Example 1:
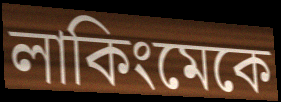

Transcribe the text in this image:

লাকিংমেকে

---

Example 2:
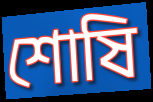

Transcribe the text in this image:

শোষি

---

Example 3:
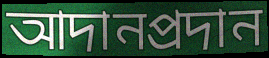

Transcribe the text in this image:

আদানপ্রদান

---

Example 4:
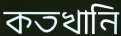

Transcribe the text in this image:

কতখানি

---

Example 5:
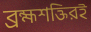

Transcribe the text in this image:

ব্রহ্মশক্তিরই